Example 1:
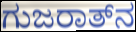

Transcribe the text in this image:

ಗುಜರಾತ್‌ನ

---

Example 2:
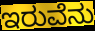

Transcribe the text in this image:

ಇರುವೆನು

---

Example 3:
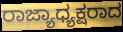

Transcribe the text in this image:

ರಾಜ್ಯಾಧ್ಯಕ್ಷರಾದ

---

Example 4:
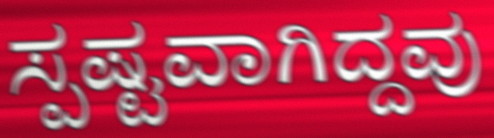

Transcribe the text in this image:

ಸ್ಪಷ್ಟವಾಗಿದ್ದವು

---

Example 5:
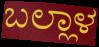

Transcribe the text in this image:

ಬಲ್ಲಾಳ